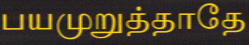
பயமுறுத்தாதே